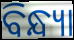
ବିନ୍ଧ୍ୟା